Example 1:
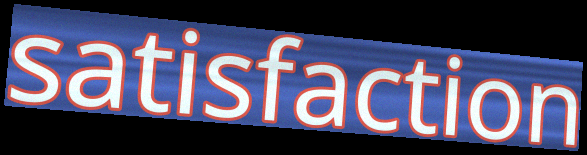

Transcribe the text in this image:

satisfaction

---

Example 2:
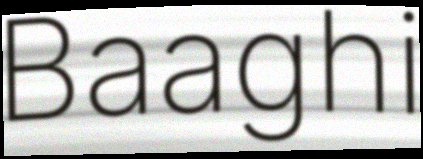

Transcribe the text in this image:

Baaghi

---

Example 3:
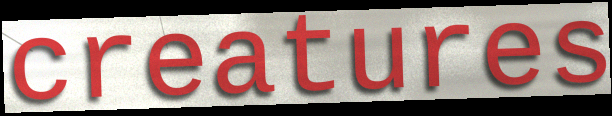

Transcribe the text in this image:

creatures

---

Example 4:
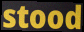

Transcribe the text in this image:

stood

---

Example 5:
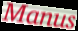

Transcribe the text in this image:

Manus